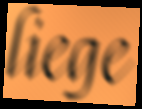
liege